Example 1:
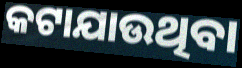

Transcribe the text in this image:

କଟାଯାଉଥିବା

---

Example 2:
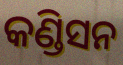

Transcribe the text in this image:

କଣ୍ଡିସନ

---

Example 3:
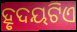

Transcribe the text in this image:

ହୃଦୟଟିଏ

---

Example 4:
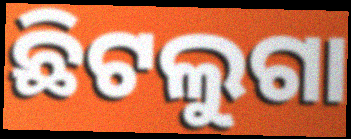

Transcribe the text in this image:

ଛିଟଲୁଗା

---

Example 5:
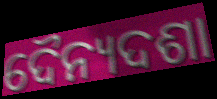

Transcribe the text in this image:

ଦୈନ୍ୟଦଶା